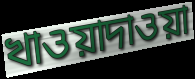
খাওয়াদাওয়া